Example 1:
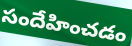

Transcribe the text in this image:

సందేహించడం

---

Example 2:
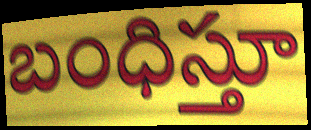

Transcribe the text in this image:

బంధిస్తూ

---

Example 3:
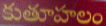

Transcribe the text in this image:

కుతూహలం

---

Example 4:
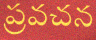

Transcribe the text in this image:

ప్రవచన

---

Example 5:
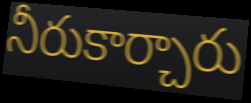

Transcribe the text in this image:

నీరుకార్చారు